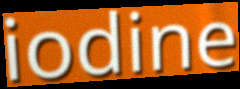
iodine